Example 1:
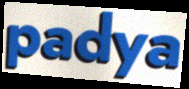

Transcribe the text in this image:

padya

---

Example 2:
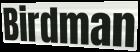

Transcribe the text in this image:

Birdman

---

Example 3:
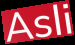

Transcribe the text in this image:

Asli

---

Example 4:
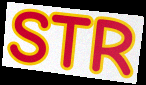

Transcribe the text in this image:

STR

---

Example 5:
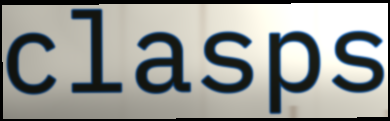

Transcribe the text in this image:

clasps